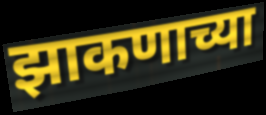
झाकणाच्या